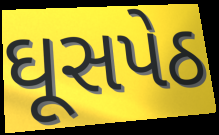
ઘૂસપેઠ